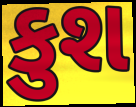
કુશ